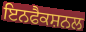
ਇਨਫੈਕਸ਼ਨਲ